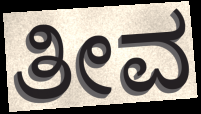
ತೀವ